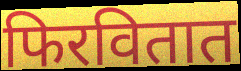
फिरवितात